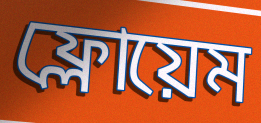
ফ্লোয়েম